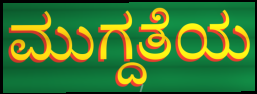
ಮುಗ್ದತೆಯ